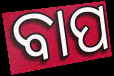
ବାପ